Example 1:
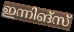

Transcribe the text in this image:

ഇന്നിങ്സ്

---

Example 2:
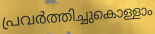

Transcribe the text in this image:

പ്രവർത്തിച്ചുകൊള്ളാം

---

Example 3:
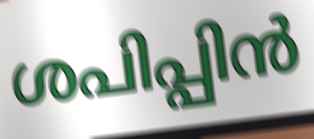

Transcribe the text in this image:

ശപിപ്പിൻ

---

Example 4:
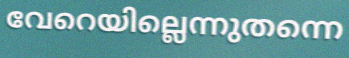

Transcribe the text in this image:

വേറെയില്ലെന്നുതന്നെ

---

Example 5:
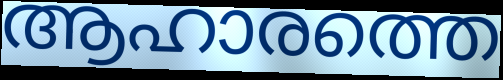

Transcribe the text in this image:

ആഹാരത്തെ